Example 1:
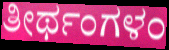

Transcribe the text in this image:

ತೀರ್ಥಂಗಳಂ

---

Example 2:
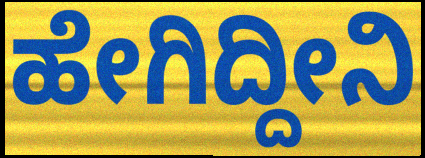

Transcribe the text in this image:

ಹೇಗಿದ್ದೀನಿ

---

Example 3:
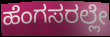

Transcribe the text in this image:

ಹೆಂಗಸರಲ್ಲೇ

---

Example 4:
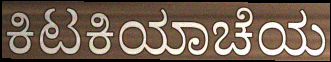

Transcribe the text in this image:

ಕಿಟಕಿಯಾಚೆಯ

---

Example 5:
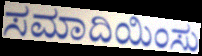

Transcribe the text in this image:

ಸಮಾದಿಯಿಂಸು